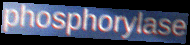
phosphorylase